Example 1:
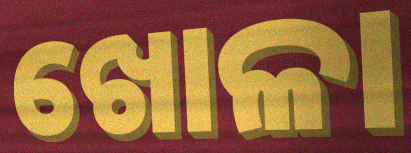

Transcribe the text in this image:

ଖୋଳା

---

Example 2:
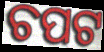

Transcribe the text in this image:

ଚପଟ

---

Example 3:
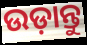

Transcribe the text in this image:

ଉଡ଼ାନ୍ତୁ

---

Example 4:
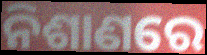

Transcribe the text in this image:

ନିଶାଣରେ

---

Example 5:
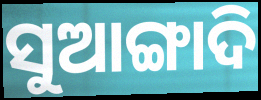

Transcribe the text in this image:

ସୁଆଙ୍ଗାଦି